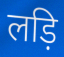
लड़ि